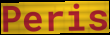
Peris